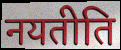
नयतीति